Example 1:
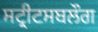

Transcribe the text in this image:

ਸਟ੍ਰੀਟਸਬਲੌਗ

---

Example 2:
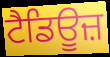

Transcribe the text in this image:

ਟੈਡਿਊਜ਼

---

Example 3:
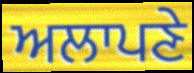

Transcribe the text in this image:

ਅਲਾਪਣੇ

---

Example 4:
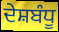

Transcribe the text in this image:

ਦੇਸ਼ਬੰਧੂ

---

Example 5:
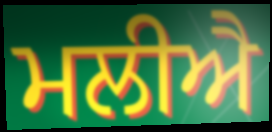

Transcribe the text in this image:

ਮਲੀਐ